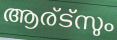
ആര്ട്സും